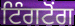
ਟਿੰਗਟੋਂਗ